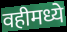
वहीमध्ये